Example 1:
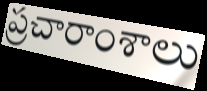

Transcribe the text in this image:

ప్రచారాంశాలు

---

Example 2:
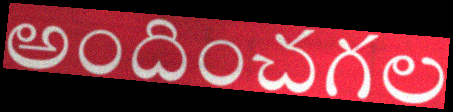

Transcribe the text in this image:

అందించగల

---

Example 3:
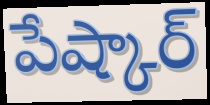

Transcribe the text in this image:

పేష్కార్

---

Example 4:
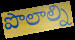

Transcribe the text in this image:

పొలాల్ని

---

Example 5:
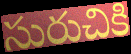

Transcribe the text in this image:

సురుచికి